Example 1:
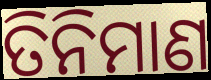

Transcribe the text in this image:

ତିନିମାଣ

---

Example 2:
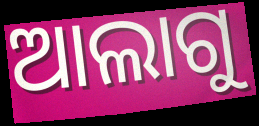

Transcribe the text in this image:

ଆଲାଗୁ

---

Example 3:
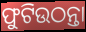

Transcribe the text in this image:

ଫୁଟିଉଠନ୍ତା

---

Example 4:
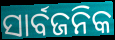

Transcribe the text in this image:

ସାର୍ବଜନିକ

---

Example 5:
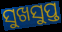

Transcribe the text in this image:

ସୁଖସୁପ୍ତ